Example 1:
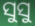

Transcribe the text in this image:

ସୁସୁ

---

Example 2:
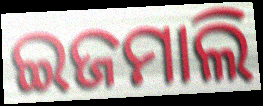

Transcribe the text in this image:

ଇଜମାଲି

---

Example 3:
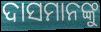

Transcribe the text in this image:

ଦାସମାନଙ୍କୁ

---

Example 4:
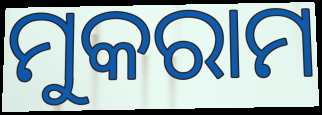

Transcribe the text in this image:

ମୁକରାମ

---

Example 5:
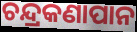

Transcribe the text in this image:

ଚନ୍ଦ୍ରକଣାପାନ